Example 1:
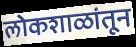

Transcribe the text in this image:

लोकशाळांतून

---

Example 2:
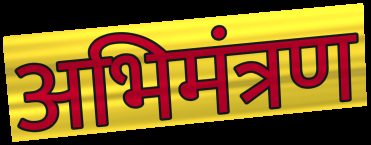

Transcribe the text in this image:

अभिमंत्रण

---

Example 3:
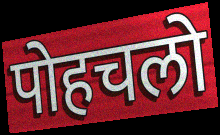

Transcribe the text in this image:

पोहचलो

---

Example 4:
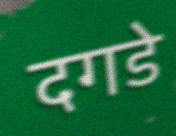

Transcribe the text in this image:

दगडे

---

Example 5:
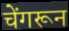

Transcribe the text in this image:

चेंगरून